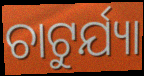
ଚାଟୁର୍ଯ୍ୟା